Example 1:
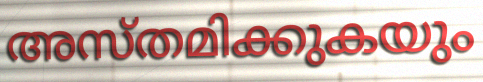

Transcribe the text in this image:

അസ്തമിക്കുകയും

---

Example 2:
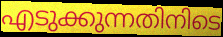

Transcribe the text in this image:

എടുക്കുന്നതിനിടെ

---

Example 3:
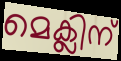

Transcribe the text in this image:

മെക്ലിന്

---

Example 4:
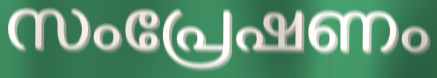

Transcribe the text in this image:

സംപ്രേഷണം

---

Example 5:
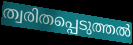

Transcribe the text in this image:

ത്വരിതപ്പെടുത്തൽ